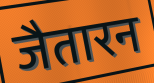
जैतारन